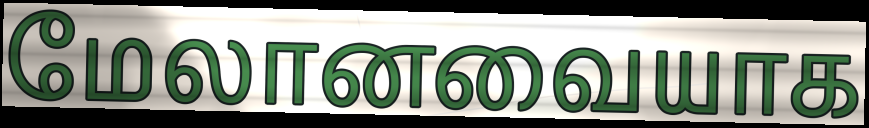
மேலானவையாக